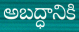
అబద్ధానికి